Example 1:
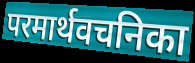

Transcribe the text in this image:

परमार्थवचनिका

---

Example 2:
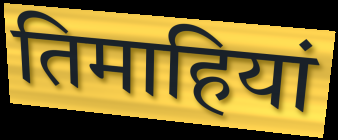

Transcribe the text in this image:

तिमाहियां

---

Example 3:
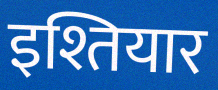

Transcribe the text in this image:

इश्तियार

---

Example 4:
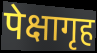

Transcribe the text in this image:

पेक्षागृह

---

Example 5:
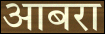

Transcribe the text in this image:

आबरा